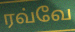
ரவ்வே